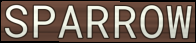
SPARROW